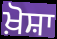
ਖ਼ੋਸ਼ਾ